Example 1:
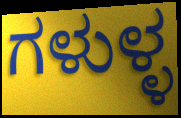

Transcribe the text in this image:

ಗಳುಳ್ಳ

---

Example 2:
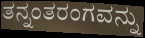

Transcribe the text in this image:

ತನ್ನಂತರಂಗವನ್ನು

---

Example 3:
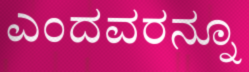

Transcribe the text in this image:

ಎಂದವರನ್ನೂ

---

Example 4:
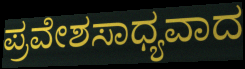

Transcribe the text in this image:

ಪ್ರವೇಶಸಾಧ್ಯವಾದ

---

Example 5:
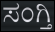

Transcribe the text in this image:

ಸಂಗ್ತಿ